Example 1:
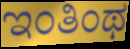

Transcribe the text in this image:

ಇಂತಿಂಥ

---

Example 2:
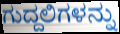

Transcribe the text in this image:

ಗುದ್ದಲಿಗಳನ್ನು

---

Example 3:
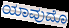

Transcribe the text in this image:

ಯಾವುದೊ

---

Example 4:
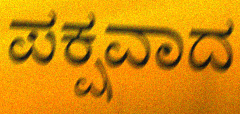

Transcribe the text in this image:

ಪಕ್ಷವಾದ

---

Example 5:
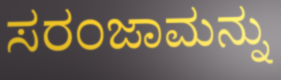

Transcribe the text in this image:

ಸರಂಜಾಮನ್ನು